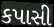
કપાસી